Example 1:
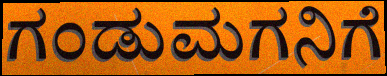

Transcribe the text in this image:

ಗಂಡುಮಗನಿಗೆ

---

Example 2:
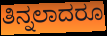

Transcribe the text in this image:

ತಿನ್ನಲಾದರೂ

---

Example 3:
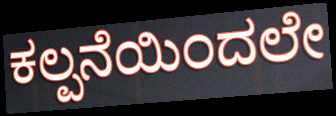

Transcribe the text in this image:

ಕಲ್ಪನೆಯಿಂದಲೇ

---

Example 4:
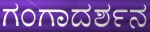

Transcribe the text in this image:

ಗಂಗಾದರ್ಶನ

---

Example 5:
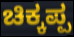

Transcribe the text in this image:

ಚಿಕ್ಕಪ್ಪ